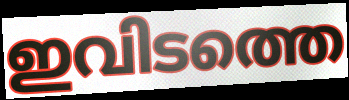
ഇവിടത്തെ